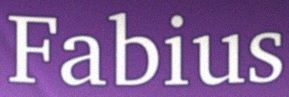
Fabius